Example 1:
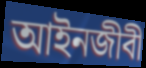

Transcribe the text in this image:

আইনজীবী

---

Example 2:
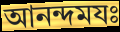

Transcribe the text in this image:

আনন্দমযঃ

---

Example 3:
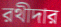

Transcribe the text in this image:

রথীদার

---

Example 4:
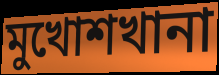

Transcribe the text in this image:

মুখোশখানা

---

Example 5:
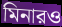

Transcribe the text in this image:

মিনারও